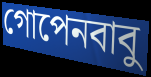
গোপেনবাবু